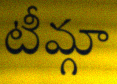
టీమ్గా